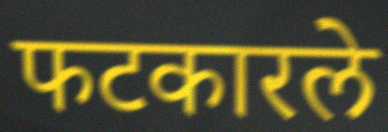
फटकारले